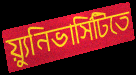
য়্যুনিভার্সিটিতে